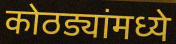
कोठड्यांमध्ये